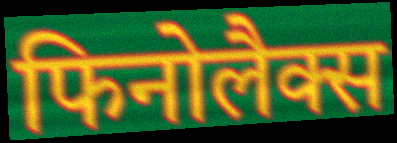
फिनोलैक्स